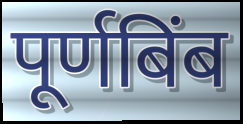
पूर्णबिंब